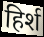
हिर्श